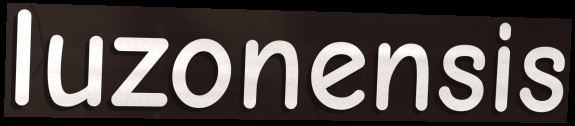
luzonensis